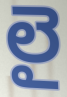
లై